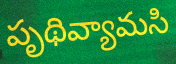
పృథివ్యామసి